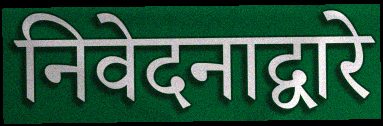
निवेदनाद्वारे